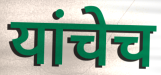
यांचेच